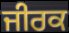
ਜੀਰਕ